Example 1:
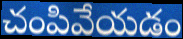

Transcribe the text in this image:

చంపివేయడం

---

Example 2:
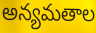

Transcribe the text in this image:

అన్యమతాల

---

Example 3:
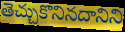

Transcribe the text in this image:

తెచ్చుకొనినదానిని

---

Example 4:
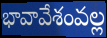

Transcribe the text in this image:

భావావేశంవల్ల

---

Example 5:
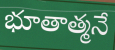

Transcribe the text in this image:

భూతాత్మనే